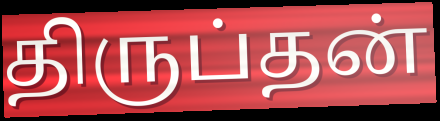
திருப்தன்